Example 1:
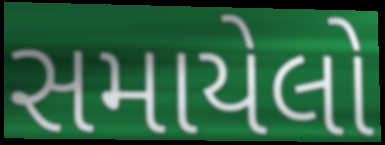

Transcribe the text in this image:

સમાયેલો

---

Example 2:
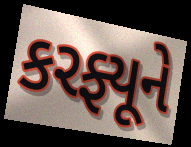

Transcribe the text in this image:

કરફ્યૂને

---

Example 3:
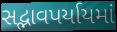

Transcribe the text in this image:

સદ્ભાવપર્યાયમાં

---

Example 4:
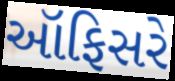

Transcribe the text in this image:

ઑફિસરે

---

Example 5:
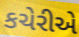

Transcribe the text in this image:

કચેરીએ